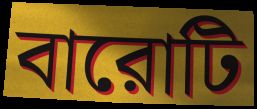
বারোটি